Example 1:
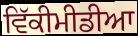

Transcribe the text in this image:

ਵਿੱਕੀਮੀਡੀਆ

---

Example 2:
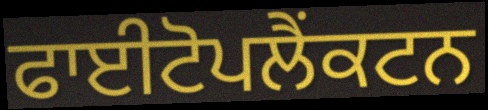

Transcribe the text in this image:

ਫਾਈਟੋਪਲੈਂਕਟਨ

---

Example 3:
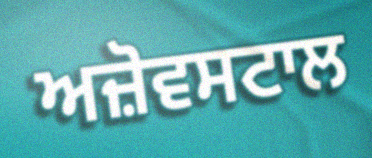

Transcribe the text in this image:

ਅਜ਼ੋਵਸਟਾਲ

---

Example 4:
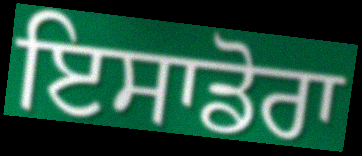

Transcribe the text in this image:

ਇਸਾਡੋਰਾ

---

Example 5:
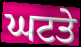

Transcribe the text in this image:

ਘਟਤੇ